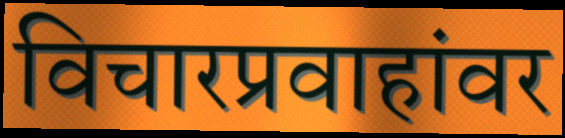
विचारप्रवाहांवर